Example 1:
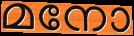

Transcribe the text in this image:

മനോ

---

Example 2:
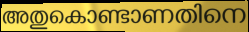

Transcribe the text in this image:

അതുകൊണ്ടാണതിനെ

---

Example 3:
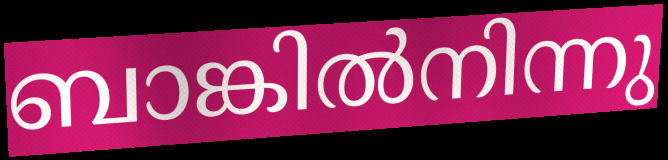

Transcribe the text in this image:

ബാങ്കിൽനിന്നു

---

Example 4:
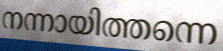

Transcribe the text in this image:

നന്നായിത്തന്നെ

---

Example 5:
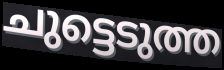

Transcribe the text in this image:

ചുട്ടെടുത്ത